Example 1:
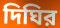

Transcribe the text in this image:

দিঘির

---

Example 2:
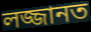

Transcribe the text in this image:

লজ্জানত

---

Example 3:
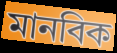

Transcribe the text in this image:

মানবিক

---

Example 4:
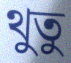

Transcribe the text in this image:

থুতু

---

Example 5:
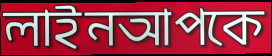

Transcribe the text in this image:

লাইনআপকে